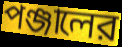
পঞ্জালের